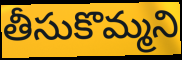
తీసుకొమ్మని